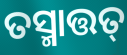
ତସ୍ମାତ୍ତତ୍